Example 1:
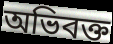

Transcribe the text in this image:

অভিবক্ত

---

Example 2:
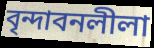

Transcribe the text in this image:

বৃন্দাবনলীলা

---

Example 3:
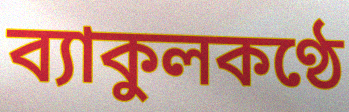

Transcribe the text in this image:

ব্যাকুলকণ্ঠে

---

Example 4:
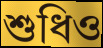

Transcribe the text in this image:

শুধিও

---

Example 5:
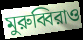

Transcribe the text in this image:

মুরুব্বিরাও